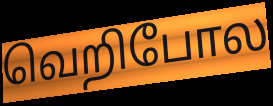
வெறிபோல